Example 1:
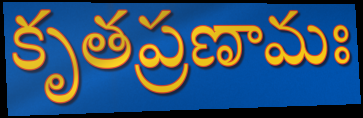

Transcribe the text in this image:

కృతప్రణామః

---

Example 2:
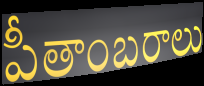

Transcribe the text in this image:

పీతాంబరాలు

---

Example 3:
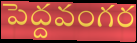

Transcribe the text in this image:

పెద్దవంగర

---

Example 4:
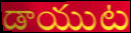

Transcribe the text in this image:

డాయుట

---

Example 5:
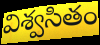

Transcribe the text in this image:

విశ్వసితం